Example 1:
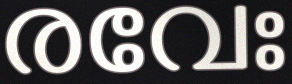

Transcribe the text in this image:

രവേഃ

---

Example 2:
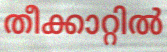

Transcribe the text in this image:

തീക്കാറ്റിൽ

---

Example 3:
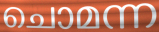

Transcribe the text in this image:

ചൊമന്ന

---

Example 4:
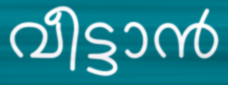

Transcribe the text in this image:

വീട്ടാൻ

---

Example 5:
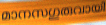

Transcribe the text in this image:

മാനസഗുരുവായി